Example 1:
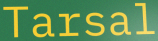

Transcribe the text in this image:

Tarsal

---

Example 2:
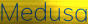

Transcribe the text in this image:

Medusa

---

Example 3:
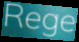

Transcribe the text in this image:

Rege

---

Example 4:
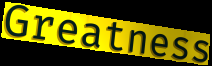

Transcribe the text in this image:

Greatness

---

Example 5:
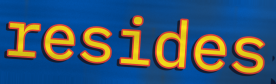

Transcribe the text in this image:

resides